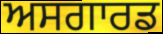
ਅਸਗਾਰਡ